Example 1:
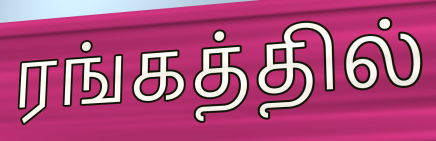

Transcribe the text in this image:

ரங்கத்தில்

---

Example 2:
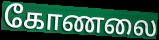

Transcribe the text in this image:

கோணலை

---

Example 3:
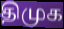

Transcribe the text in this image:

திமுக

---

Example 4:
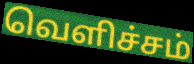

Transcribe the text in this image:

வெளிச்சம்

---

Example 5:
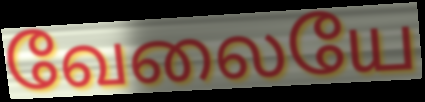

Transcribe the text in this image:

வேலையே